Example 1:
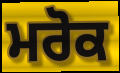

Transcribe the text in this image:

ਮਰੋਕ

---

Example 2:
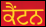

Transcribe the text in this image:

ਕੈਂਟਨ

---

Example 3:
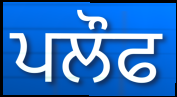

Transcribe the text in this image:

ਪਲੌਫ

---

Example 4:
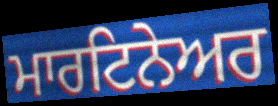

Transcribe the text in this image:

ਮਾਰਟਿਨੇਅਰ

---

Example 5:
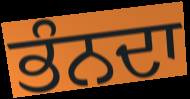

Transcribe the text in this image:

ਭੰਨਦਾ